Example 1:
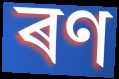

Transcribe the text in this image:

ৰণ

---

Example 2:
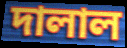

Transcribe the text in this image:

দালাল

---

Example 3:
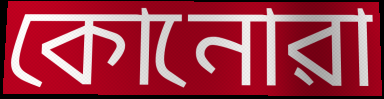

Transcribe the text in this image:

কোনোৱা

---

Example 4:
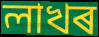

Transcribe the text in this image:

লাখৰ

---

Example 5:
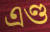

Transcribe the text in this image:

এণ্ড